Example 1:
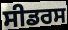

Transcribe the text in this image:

ਸੀਡਰਸ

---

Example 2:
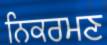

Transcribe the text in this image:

ਨਿਕਰਮਣ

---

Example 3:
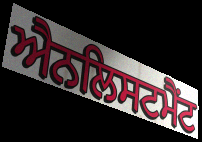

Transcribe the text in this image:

ਐਨਲਿਸਟਮੈਂਟ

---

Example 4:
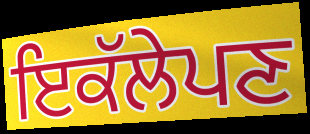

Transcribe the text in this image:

ਇਕੱਲੇਪਣ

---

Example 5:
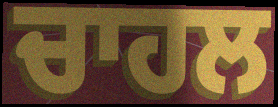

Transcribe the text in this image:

ਚਾਹਲ